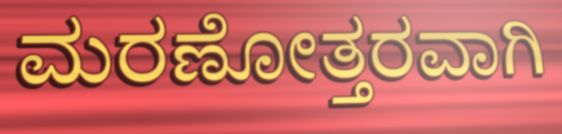
ಮರಣೋತ್ತರವಾಗಿ